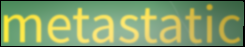
metastatic